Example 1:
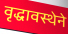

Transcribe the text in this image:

वृद्धावस्थेने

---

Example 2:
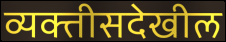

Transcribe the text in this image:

व्यक्तीसदेखील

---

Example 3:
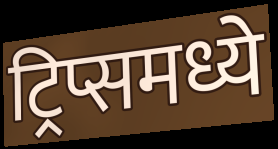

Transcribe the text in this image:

ट्रिप्समध्ये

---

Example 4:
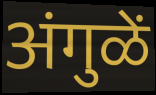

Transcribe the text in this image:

अंगुळें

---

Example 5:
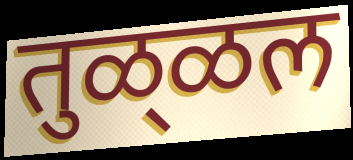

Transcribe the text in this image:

तुळ्‌ळल